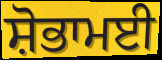
ਸ਼ੋਭਾਮਈ